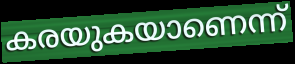
കരയുകയാണെന്ന്